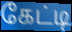
கேட்டி